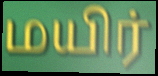
மயிர்